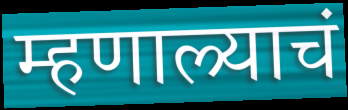
म्हणाल्याचं